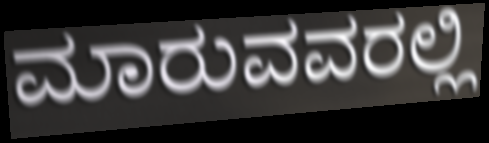
ಮಾರುವವರಲ್ಲಿ